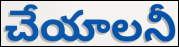
చేయాలనీ